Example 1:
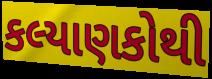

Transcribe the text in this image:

કલ્યાણકોથી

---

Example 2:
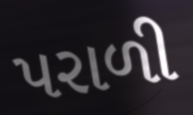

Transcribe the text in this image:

પરાળી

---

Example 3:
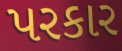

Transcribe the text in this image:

પરકાર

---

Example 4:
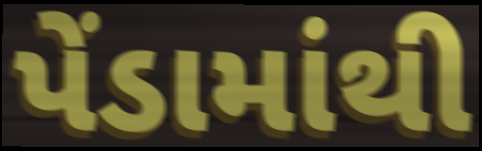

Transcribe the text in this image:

પેંડામાંથી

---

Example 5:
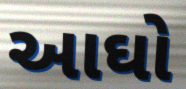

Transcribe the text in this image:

આઘો